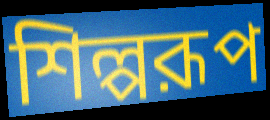
শিল্পরূপ